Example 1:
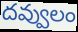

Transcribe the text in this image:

దవ్వులం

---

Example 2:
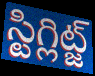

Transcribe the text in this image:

స్టిగ్లిట్జ్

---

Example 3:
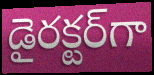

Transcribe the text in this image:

డైరక్టర్‌గా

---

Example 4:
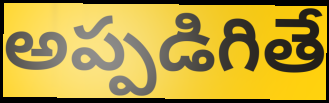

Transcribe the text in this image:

అప్పడిగితే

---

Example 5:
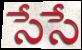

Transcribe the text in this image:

సేసే